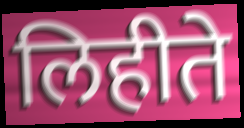
लिहीते